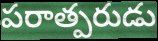
పరాత్పరుడు